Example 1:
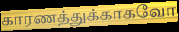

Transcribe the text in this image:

காரணத்துக்காகவோ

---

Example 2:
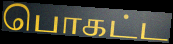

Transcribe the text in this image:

பொகட்ட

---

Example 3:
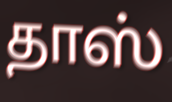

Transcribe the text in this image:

தாஸ்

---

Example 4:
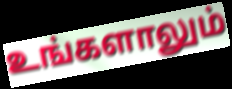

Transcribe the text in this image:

உங்களாலும்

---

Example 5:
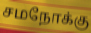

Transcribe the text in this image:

சமநோக்கு